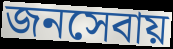
জনসেবায়